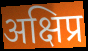
अक्षिप्र